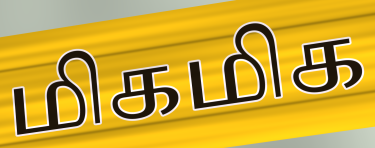
மிகமிக